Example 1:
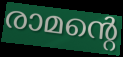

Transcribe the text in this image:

രാമന്റെ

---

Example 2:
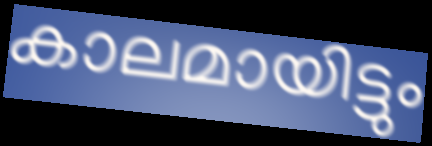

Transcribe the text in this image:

കാലമായിട്ടും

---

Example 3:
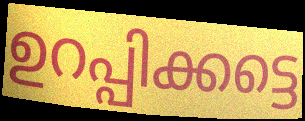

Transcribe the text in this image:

ഉറപ്പിക്കട്ടെ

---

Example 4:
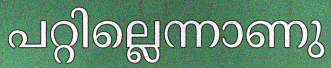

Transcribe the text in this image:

പറ്റില്ലെന്നാണു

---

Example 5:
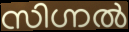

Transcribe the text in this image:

സിഗ്നൽ